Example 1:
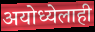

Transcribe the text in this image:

अयोध्येलाही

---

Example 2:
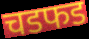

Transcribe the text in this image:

चडफड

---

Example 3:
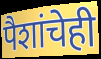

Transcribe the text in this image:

पैशांचेही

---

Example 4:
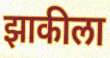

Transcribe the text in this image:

झाकीला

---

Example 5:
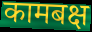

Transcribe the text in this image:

कामबक्ष